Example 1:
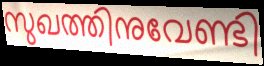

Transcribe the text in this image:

സുഖത്തിനുവേണ്ടി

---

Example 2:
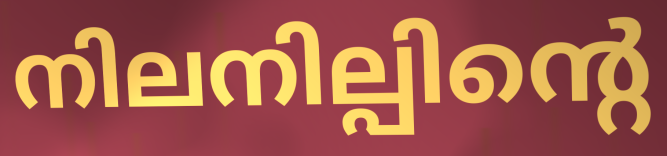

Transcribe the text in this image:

നിലനില്പിന്റെ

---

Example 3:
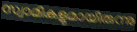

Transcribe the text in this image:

സ്വാമികളുമായിരുന്നു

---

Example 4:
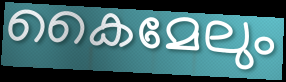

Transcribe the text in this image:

കൈമേലും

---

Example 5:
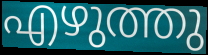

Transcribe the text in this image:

എഴുത്തു